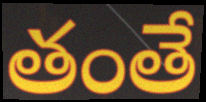
తంతే